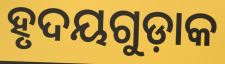
ହୃଦୟଗୁଡ଼ାକ